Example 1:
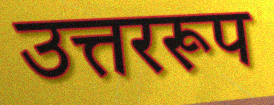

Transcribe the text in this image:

उत्तररूप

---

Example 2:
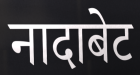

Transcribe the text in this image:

नादाबेट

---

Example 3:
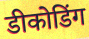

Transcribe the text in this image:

डीकोडिंग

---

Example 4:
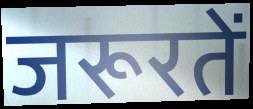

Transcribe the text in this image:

जरूरतें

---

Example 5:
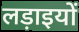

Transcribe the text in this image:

लड़ाइयों